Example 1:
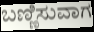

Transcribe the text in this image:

ಬಣ್ಣಿಸುವಾಗ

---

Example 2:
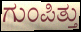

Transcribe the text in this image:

ಗುಂಪಿತ್ತು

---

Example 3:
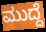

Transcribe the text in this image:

ಮುದ್ದೆ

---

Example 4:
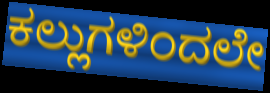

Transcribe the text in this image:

ಕಲ್ಲುಗಳಿಂದಲೇ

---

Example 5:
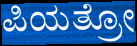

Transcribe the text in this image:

ಪಿಯತ್ರೋ